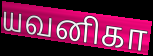
யவனிகா